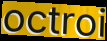
octroi